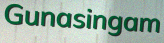
Gunasingam